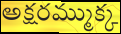
అక్షరమ్ముక్క